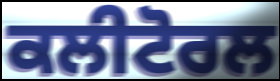
ਕਲੀਟੋਰਲ